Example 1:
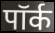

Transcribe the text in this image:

पॉर्क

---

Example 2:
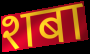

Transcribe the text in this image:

शबा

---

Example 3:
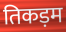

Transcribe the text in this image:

तिकड़म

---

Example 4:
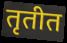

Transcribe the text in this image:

तृतीत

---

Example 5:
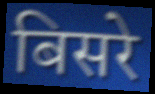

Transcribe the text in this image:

बिसरे